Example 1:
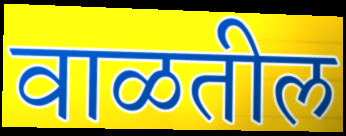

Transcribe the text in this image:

वाळतील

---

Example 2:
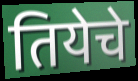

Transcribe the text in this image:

तियेचे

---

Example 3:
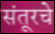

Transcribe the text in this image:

संतूरचे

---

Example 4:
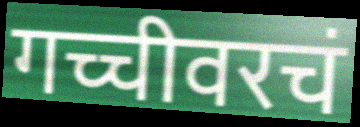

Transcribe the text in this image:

गच्चीवरचं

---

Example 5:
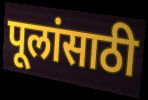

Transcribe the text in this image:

पूलांसाठी